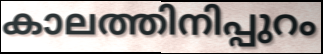
കാലത്തിനിപ്പുറം